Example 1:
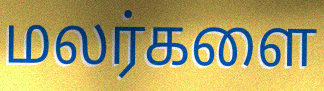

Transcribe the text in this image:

மலர்களை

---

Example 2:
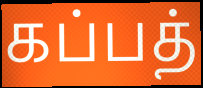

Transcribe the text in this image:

கப்பத்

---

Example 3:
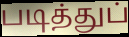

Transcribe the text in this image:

படித்துப்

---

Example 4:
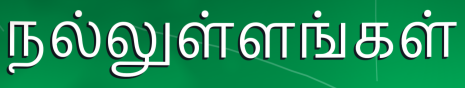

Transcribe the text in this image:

நல்லுள்ளங்கள்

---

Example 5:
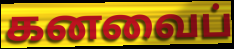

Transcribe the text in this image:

கனவைப்